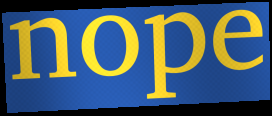
nope